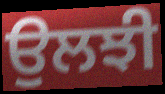
ਉਲਝੀ